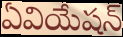
ఏవియేషన్